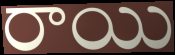
రాయి